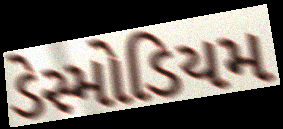
ડેસ્મોડિયમ